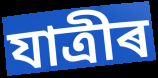
যাত্ৰীৰ